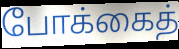
போக்கைத்